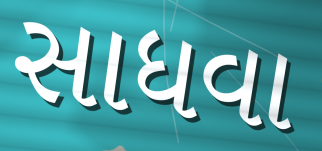
સાધવા